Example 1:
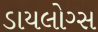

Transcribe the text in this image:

ડાયલોગ્સ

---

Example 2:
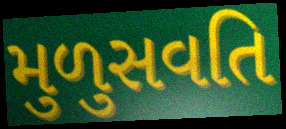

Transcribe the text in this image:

મુળુસવતિ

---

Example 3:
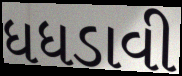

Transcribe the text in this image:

ધધડાવી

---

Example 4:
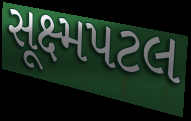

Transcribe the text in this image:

સૂક્ષ્મપટલ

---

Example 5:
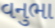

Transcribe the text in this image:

વનુભા